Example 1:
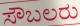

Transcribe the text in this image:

ಸೌಬಲರು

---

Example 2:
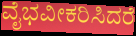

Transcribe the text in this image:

ವೈಭವೀಕರಿಸಿದರೆ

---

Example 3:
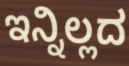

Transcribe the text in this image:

ಇನ್ನಿಲ್ಲದ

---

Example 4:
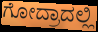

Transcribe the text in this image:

ಗೋದ್ರಾದಲ್ಲಿ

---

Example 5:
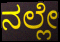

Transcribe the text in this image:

ನಲ್ಲೇ